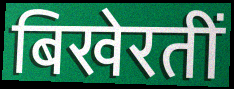
बिखेरतीं